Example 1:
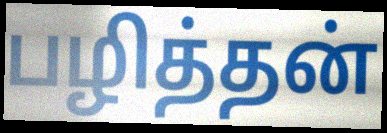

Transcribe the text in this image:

பழித்தன்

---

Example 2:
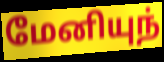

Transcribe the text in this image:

மேனியுந்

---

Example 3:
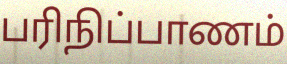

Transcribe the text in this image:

பரிநிப்பாணம்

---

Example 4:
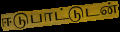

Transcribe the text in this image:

ஈடுபாட்டுடன்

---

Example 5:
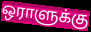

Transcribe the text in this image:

ஒராளுக்கு